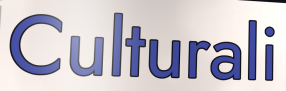
Culturali